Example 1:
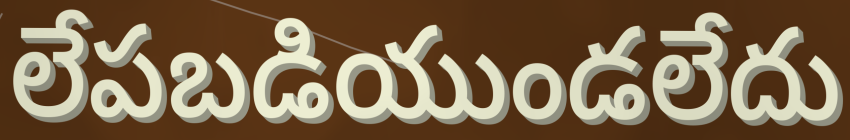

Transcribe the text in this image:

లేపబడియుండలేదు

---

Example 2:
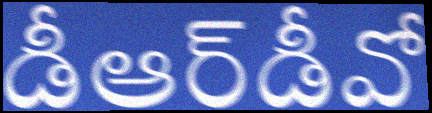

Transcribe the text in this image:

డీఆర్‌డీవో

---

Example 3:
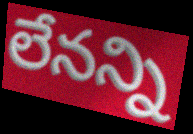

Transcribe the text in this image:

లేనన్ని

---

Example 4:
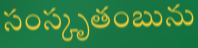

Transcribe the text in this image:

సంస్కృతంబును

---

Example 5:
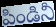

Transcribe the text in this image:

పిండినీ